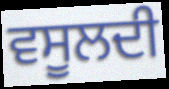
ਵਸੂਲਦੀ